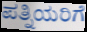
ಪತ್ನಿಯರಿಗೆ